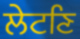
ਲੇਟਣਿ